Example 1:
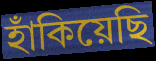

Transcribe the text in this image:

হাঁকিয়েছি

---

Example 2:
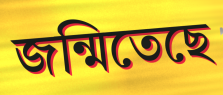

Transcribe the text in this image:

জন্মিতেছে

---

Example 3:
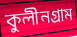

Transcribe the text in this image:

কুলীনগ্রাম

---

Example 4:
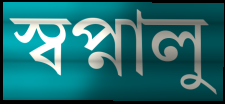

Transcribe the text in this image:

স্বপ্নালু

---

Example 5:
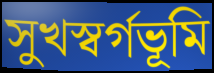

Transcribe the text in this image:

সুখস্বর্গভূমি